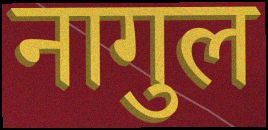
नागुल